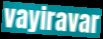
vayiravar